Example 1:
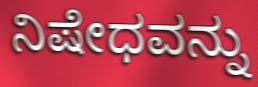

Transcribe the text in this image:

ನಿಷೇಧವನ್ನು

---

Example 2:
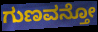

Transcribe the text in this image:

ಗುಣವನ್ತೋ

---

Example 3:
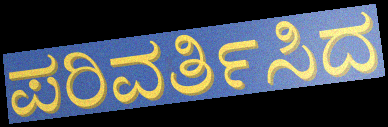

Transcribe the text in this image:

ಪರಿವರ್ತಿಸಿದ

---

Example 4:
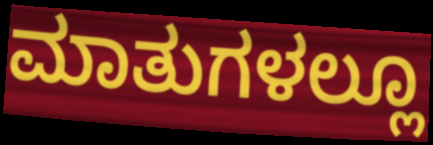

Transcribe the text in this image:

ಮಾತುಗಳಲ್ಲೂ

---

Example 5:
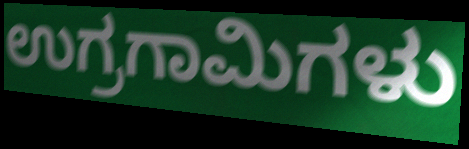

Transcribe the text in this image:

ಉಗ್ರಗಾಮಿಗಳು